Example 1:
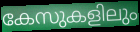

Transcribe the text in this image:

കേസുകളിലും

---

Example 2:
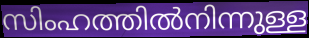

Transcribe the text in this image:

സിംഹത്തിൽനിന്നുള്ള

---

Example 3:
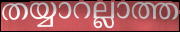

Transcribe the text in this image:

തയ്യാറല്ലാത്ത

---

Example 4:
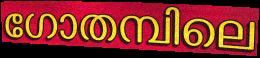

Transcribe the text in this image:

ഗോതമ്പിലെ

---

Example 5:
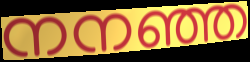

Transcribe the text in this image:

നനഞ്ഞ